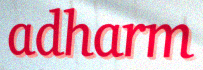
adharm